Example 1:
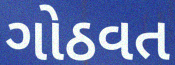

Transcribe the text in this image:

ગોઠવત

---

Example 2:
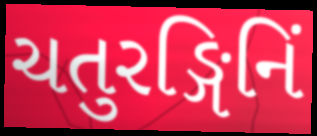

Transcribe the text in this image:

ચતુરઙ્ગિનિં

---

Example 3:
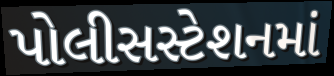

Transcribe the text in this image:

પોલીસસ્ટેશનમાં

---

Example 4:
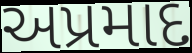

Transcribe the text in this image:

અપ્રમાદ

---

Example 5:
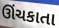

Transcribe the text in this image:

ઊંચકાતા